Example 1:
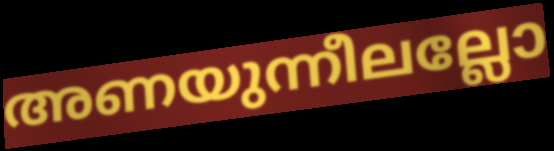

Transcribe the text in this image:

അണയുന്നീലല്ലോ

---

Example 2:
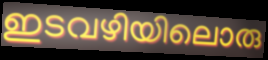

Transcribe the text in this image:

ഇടവഴിയിലൊരു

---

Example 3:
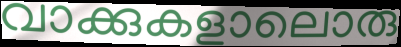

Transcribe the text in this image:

വാക്കുകളാലൊരു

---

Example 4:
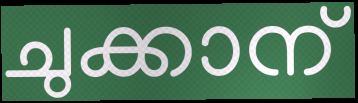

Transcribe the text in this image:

ചുക്കാന്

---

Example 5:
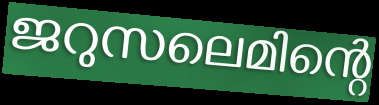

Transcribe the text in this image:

ജറുസലെമിന്റെ